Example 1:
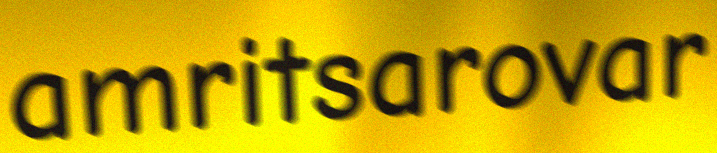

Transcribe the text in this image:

amritsarovar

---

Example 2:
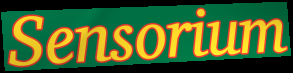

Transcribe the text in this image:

Sensorium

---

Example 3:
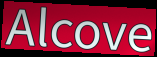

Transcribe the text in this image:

Alcove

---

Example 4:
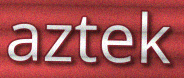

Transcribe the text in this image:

aztek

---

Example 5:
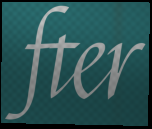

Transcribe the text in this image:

fter